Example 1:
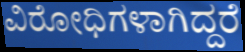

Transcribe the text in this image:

ವಿರೋಧಿಗಳಾಗಿದ್ದರೆ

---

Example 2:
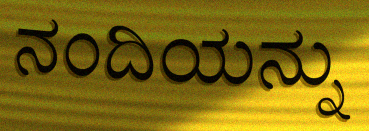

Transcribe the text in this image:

ನಂದಿಯನ್ನು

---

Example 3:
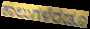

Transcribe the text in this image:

ಕಾಲುಗಳೆರಡೂ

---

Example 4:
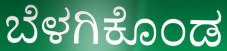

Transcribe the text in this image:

ಬೆಳಗಿಕೊಂಡ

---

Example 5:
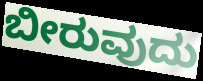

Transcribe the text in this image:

ಬೀರುವುದು